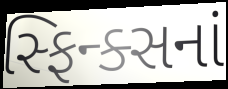
સ્ફિન્ક્સનાં